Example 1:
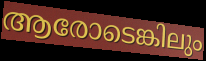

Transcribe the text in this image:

ആരോടെങ്കിലും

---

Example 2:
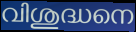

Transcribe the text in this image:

വിശുദ്ധനെ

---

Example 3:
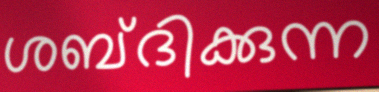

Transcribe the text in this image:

ശബ്ദിക്കുന്ന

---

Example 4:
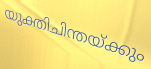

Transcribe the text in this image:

യുക്തിചിന്തയ്ക്കും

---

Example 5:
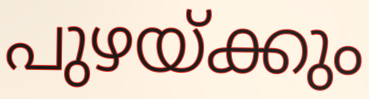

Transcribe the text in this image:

പുഴയ്ക്കും